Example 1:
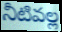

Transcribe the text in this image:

నీటివల్ల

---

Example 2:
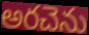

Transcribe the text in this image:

అరచెను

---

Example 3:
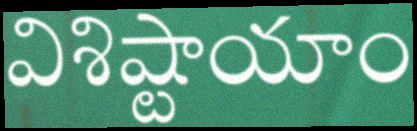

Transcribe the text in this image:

విశిష్టాయాం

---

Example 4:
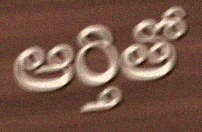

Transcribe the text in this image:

ఆర్తితో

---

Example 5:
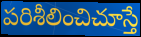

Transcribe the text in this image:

పరిశీలించిచూస్తే